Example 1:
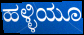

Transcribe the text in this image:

ಹಳ್ಳಿಯೂ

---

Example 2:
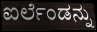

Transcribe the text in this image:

ಐರ್ಲೆಂಡನ್ನು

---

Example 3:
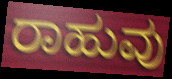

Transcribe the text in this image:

ರಾಹುವು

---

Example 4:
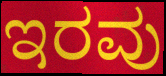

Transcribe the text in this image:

ಇರವು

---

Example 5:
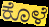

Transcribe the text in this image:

ಕೊಳೆ